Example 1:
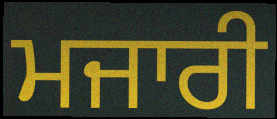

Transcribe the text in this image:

ਮਜਾਰੀ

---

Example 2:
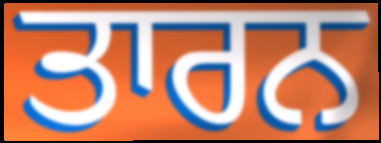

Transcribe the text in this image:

ਤਾਰਨ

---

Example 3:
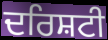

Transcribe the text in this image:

ਦਰਿਸ਼ਟੀ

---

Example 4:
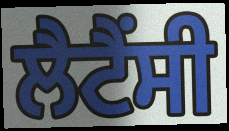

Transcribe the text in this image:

ਲੈਟੈਂਸੀ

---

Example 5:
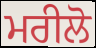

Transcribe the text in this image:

ਮਰੀਲੋ